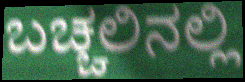
ಬಚ್ಚಲಿನಲ್ಲಿ